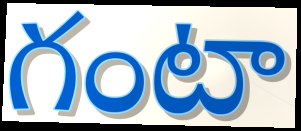
గంటా